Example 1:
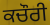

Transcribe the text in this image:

ਕਚੌਰੀ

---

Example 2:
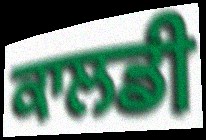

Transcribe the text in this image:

ਕਾਲਡੀ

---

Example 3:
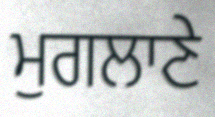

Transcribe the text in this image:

ਮੁਗਲਾਣੇ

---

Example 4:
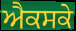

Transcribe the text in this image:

ਐਕਸਕੇ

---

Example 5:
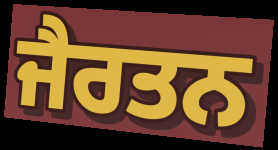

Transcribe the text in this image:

ਜੈਰਤਨ